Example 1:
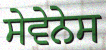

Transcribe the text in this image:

ਸੇਵੇਨੇਸ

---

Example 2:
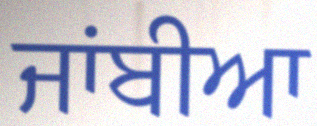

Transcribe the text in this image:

ਜਾਂਬੀਆ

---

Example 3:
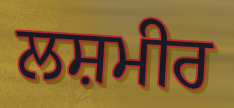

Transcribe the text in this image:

ਲਸ਼ਮੀਰ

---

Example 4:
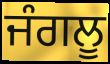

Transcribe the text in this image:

ਜੰਗਲੂ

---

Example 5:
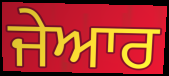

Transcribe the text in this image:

ਜੇਆਰ